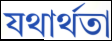
যথার্থতা